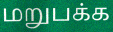
மறுபக்க